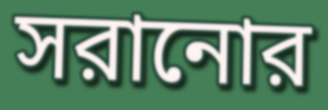
সরানোর